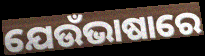
ଯେଉଁଭାଷାରେ